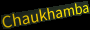
Chaukhamba